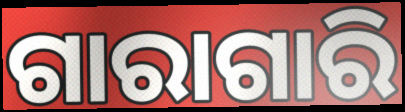
ଗାରାଗାରି